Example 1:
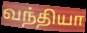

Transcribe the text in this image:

வந்தியா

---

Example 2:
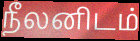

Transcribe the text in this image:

நீலனிடம்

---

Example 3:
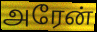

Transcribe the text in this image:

அரேன்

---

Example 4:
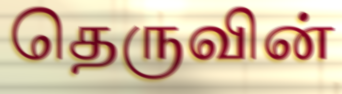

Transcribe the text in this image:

தெருவின்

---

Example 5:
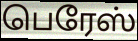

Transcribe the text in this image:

பெரேஸ்